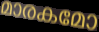
മാരകമോ